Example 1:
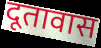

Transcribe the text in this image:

दूतावास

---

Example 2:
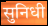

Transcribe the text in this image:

सुनिधी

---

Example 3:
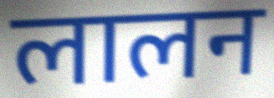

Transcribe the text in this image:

लालन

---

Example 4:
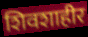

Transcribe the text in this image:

शिवशाहीर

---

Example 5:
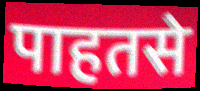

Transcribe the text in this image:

पाहतसे